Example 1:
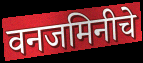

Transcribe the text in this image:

वनजमिनीचे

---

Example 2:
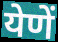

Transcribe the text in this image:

येणें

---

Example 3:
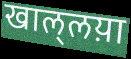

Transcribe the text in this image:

खाल्लय़ा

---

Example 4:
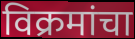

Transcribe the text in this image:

विक्रमांचा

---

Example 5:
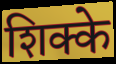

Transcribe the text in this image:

शिक्के